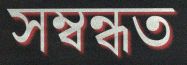
সম্বন্ধত